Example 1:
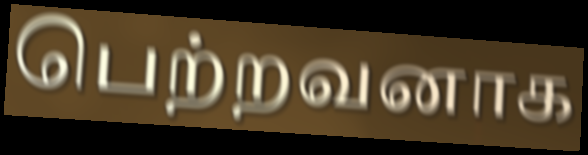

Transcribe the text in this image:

பெற்றவனாக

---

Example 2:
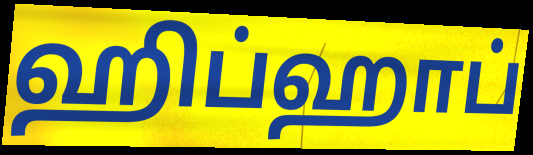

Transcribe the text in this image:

ஹிப்ஹாப்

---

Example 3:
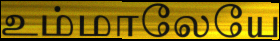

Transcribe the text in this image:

உம்மாலேயே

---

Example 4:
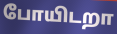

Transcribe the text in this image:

போயிடறா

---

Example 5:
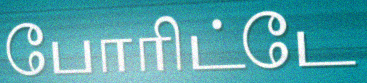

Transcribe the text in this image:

போரிட்டே